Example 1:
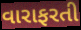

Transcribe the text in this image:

વારાફરતી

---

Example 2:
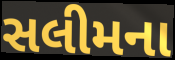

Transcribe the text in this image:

સલીમના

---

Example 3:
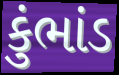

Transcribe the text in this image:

કુંભાંડ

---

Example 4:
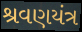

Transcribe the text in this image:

શ્રવણયંત્ર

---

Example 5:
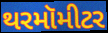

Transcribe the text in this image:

થરમૉમીટર